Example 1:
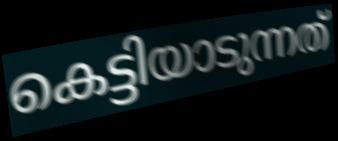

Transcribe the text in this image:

കെട്ടിയാടുന്നത്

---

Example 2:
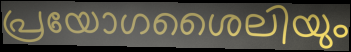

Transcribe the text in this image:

പ്രയോഗശൈലിയും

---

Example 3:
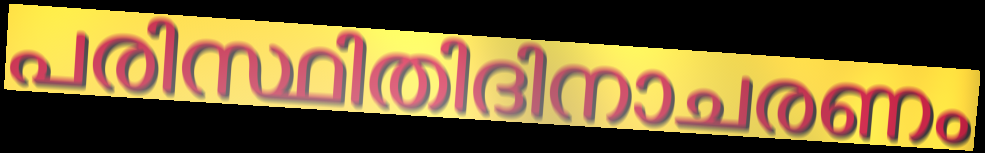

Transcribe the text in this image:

പരിസ്ഥിതിദിനാചരണം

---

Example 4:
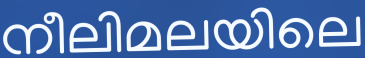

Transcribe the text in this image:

നീലിമലയിലെ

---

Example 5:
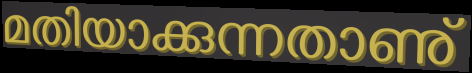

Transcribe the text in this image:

മതിയാക്കുന്നതാണു്